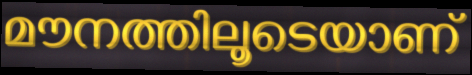
മൗനത്തിലൂടെയാണ്